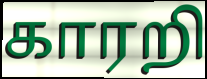
காரறி